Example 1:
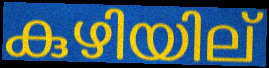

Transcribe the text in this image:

കുഴിയില്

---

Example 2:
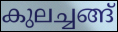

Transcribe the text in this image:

കുലച്ചങ്ങ്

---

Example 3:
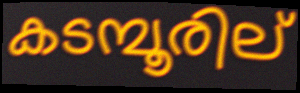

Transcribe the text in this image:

കടമ്പൂരില്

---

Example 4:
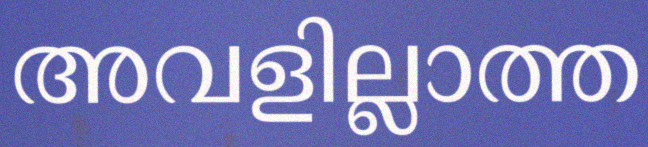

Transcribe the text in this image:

അവളില്ലാത്ത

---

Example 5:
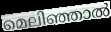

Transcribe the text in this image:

മെലിഞ്ഞാൽ